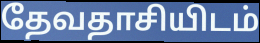
தேவதாசியிடம்